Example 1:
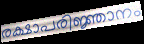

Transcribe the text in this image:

രക്ഷാപരിജ്ഞാനം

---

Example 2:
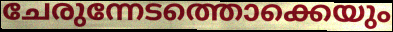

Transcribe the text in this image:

ചേരുന്നേടത്തൊക്കെയും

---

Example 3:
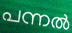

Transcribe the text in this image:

പന്നൽ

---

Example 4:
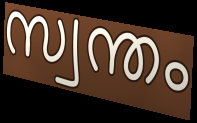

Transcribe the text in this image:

സ്വന്തം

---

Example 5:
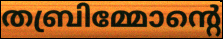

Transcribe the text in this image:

തബ്രിമ്മോന്റെ